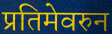
प्रतिमेवरुन